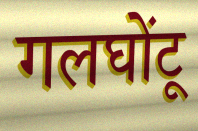
गलघोंटू